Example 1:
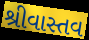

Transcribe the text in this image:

શ્રીવાસ્તવ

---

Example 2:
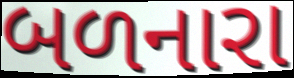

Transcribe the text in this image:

બળનારા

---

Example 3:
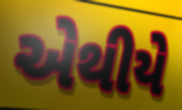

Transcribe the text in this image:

એથીયે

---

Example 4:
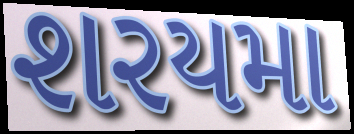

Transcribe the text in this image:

શરયમા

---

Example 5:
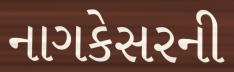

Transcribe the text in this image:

નાગકેસરની